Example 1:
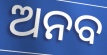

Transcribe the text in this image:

ଅନବ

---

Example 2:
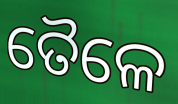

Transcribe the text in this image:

ତୈଳେ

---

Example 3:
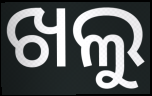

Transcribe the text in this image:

ଖଲୁ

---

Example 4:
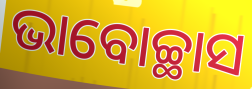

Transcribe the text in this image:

ଭାବୋଚ୍ଛାସ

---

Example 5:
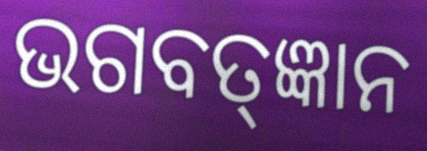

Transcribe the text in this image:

ଭଗବତ୍‌ଜ୍ଞାନ